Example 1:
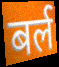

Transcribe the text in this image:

बर्ल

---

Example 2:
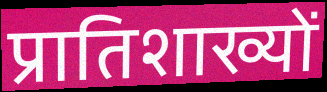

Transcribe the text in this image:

प्रातिशाख्यों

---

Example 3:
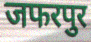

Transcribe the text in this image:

जफरपुर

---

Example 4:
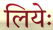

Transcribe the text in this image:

लियेः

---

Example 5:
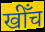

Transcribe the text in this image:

खीँच